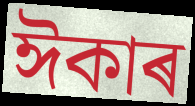
ঈকাৰ